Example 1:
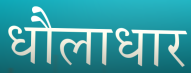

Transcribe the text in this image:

धौलाधार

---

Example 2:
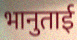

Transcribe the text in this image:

भानुताई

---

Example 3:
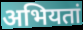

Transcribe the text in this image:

अभियतां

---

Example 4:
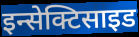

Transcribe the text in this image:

इन्सेक्टिसाइड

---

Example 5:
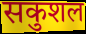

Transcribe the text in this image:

सकुशल